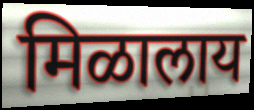
मिळालाय